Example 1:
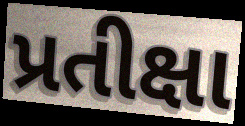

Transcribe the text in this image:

પ્રતીક્ષા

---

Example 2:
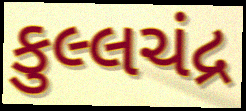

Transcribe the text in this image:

કુલ્લચંદ્ર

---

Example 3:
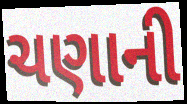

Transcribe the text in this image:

ચણાની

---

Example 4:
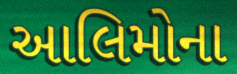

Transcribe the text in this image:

આલિમોના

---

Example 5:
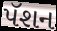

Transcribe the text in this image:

પૅશન